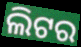
ଲିଟର